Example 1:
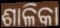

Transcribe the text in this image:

ଶାଳିକା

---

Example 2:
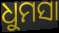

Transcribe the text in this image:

ଧୁମସା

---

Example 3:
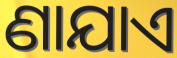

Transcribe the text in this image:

ଣାଯାଏ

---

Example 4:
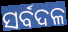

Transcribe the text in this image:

ସର୍ବଦଳ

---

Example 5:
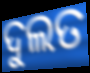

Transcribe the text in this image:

ଦୁଲତ